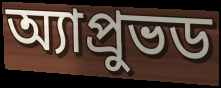
অ্যাপ্রুভড